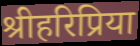
श्रीहरिप्रिया